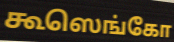
கூஸெங்கோ